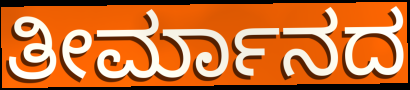
ತೀರ್ಮಾನದ